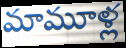
మామూళ్ల